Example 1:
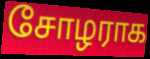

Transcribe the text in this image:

சோழராக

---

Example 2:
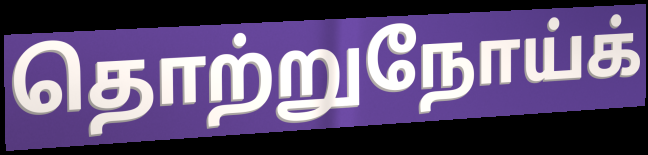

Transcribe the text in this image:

தொற்றுநோய்க்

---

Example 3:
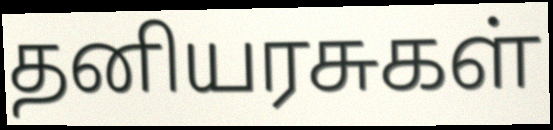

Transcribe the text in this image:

தனியரசுகள்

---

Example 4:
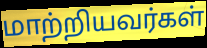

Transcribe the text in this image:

மாற்றியவர்கள்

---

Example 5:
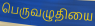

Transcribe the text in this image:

பெருவழுதியை